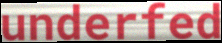
underfed